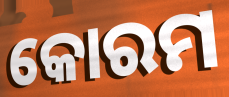
କୋରମ